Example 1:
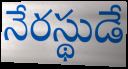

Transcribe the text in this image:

నేరస్థుడే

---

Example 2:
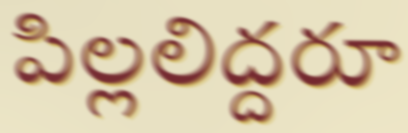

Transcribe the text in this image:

పిల్లలిద్దరూ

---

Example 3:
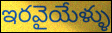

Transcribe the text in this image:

ఇరవైయేళ్ళు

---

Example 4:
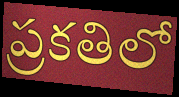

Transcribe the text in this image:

ప్రకతిలో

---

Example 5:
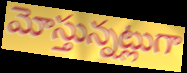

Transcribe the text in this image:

మోస్తున్నట్లుగా